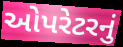
ઓપરેટરનું